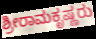
ಶ್ರೀರಾಮಕೃಷ್ಣರು